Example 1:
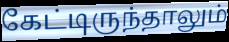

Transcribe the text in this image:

கேட்டிருந்தாலும்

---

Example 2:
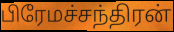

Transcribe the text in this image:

பிரேமச்சந்திரன்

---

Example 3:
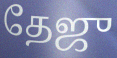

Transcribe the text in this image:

தேஜு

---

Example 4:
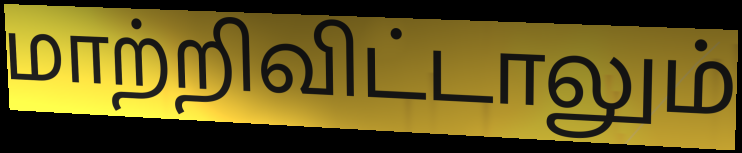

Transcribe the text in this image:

மாற்றிவிட்டாலும்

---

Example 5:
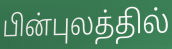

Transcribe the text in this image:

பின்புலத்தில்